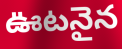
ఊటనైన